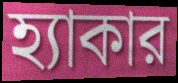
হ্যাকার